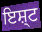
ਇਸ਼੍ਟ